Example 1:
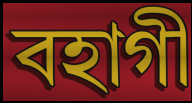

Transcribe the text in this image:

বহাগী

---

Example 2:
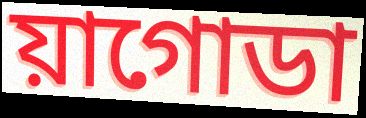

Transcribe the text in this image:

য়াগোডা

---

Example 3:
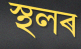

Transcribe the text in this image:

স্থলৰ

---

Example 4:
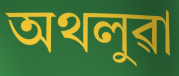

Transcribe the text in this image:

অথলুৱা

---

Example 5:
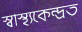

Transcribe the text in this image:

স্বাস্থ্যকেন্দ্ৰত